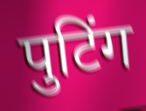
पुटिंग